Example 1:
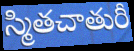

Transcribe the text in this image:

స్మితచాతురీ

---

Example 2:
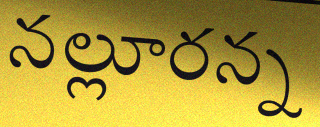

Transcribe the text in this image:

నల్లూరన్న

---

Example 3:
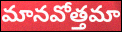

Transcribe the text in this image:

మానవోత్తమా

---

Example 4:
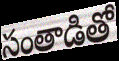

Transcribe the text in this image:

సంతాడితో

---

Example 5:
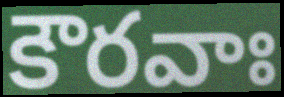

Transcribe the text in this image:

కౌరవాః